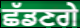
ਛੱਡਣਗੇ